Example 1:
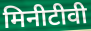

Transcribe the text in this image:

मिनीटीवी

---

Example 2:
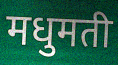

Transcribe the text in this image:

मधुमती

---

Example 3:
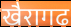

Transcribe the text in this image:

खैरागढ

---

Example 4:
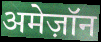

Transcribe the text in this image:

अमेज़ॉन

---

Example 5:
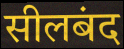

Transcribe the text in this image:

सीलबंद